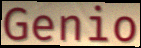
Genio